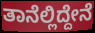
ತಾನೆಲ್ಲಿದ್ದೇನೆ